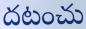
దటంచు